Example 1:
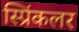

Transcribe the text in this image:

स्प्रिंकलर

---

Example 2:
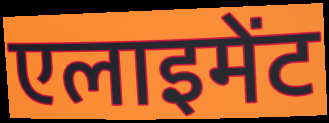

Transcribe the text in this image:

एलाइमेंट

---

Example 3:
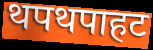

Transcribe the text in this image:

थपथपाहट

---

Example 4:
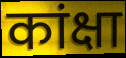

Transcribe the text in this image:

कांक्षा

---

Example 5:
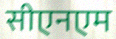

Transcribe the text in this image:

सीएनएम